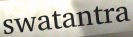
swatantra